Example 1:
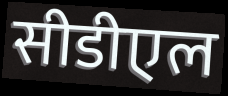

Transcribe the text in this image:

सीडीएल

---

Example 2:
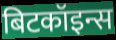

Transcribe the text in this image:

बिटकॉइन्स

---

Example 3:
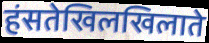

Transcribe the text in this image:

हंसतेखिलखिलाते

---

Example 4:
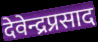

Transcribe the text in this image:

देवेन्द्रप्रसाद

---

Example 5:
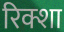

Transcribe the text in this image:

रिक्शा